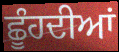
ਛੂੰਹਦੀਆਂ